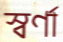
স্বর্ণা